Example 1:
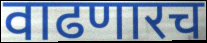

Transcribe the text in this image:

वाढणारच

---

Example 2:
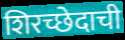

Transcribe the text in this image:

शिरच्छेदाची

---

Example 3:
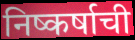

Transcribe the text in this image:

निष्कर्षाची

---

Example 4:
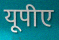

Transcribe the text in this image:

यूपीए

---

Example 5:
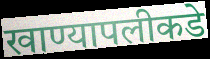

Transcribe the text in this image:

खाण्यापलीकडे